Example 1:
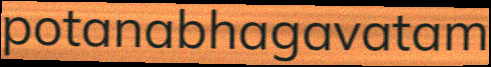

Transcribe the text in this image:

potanabhagavatam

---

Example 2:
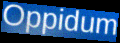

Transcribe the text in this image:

Oppidum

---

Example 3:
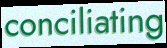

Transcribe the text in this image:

conciliating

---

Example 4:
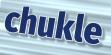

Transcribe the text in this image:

chukle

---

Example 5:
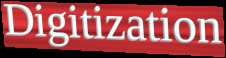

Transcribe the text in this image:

Digitization